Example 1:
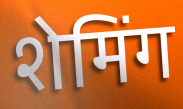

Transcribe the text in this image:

शेमिंग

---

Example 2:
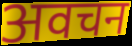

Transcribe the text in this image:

अवचन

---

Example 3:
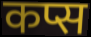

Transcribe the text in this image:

कप्स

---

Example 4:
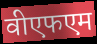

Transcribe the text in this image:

वीएफएम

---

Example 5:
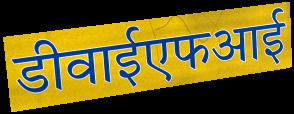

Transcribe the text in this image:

डीवाईएफआई